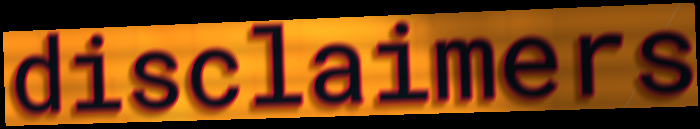
disclaimers